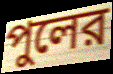
পুলের